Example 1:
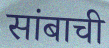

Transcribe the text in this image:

सांबाची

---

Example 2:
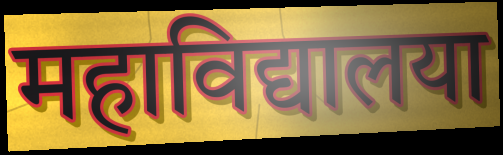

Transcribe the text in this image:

महाविद्यालया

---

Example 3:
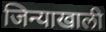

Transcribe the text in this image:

जिन्याखाली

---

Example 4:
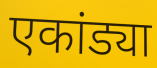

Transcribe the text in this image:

एकांड्या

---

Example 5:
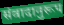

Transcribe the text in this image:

संवादानुरूप